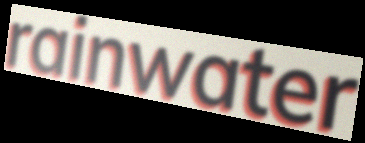
rainwater